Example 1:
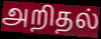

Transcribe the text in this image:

அறிதல்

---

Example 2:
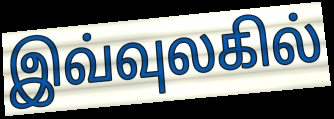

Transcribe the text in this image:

இவ்வுலகில்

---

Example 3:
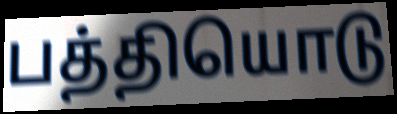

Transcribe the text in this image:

பத்தியொடு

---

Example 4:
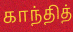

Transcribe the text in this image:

காந்தித்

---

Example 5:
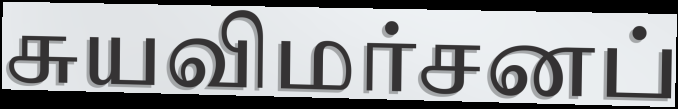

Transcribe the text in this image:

சுயவிமர்சனப்